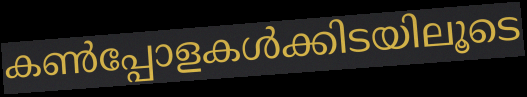
കൺപ്പോളകൾക്കിടയിലൂടെ